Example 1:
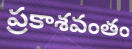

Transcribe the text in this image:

ప్రకాశవంతం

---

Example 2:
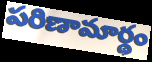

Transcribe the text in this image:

పరిణామార్థం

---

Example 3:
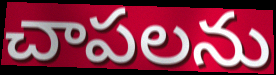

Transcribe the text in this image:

చాపలను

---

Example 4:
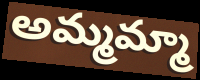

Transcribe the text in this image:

అమ్మమ్మా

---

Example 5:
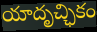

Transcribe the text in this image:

యాదృచ్ఛికం